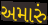
અમારું